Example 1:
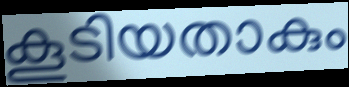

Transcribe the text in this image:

കൂടിയതാകും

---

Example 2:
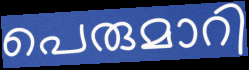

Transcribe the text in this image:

പെരുമാറി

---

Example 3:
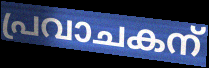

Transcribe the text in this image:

പ്രവാചകന്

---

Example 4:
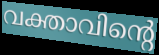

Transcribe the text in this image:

വക്താവിന്റെ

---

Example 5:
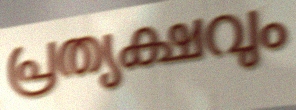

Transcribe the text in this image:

പ്രത്യക്ഷവും